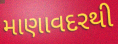
માણાવદરથી